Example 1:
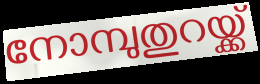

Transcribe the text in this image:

നോമ്പുതുറയ്ക്ക്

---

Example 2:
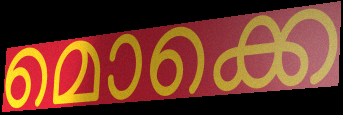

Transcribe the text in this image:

മൊക്കെ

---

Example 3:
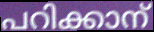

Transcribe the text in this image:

പറിക്കാന്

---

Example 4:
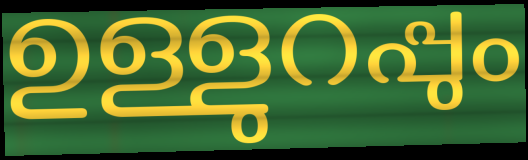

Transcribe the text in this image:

ഉള്ളുറപ്പും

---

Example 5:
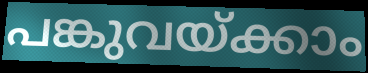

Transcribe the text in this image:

പങ്കുവയ്ക്കാം